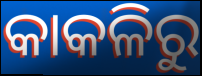
କାକଳିରୁ